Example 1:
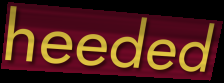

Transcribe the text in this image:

heeded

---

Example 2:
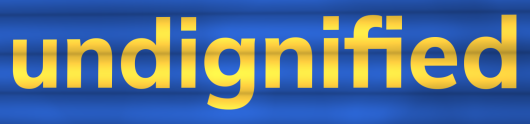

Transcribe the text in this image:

undignified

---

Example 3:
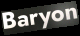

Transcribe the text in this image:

Baryon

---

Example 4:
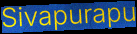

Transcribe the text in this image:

Sivapurapu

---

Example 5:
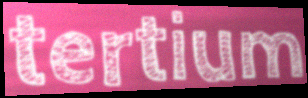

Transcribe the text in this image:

tertium